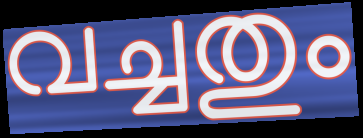
വച്ചതും